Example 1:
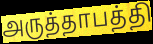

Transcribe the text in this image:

அருத்தாபத்தி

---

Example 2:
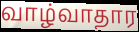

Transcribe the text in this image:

வாழ்வாதார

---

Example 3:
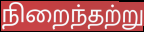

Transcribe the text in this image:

நிறைந்தற்று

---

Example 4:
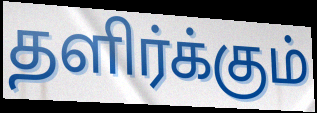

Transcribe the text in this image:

தளிர்க்கும்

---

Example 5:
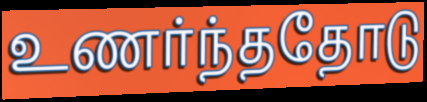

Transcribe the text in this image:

உணர்ந்ததோடு